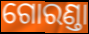
ଗୋରଣ୍ଡା